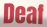
Deaf